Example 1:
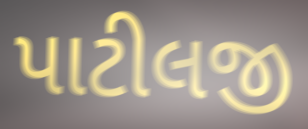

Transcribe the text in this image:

પાટીલજી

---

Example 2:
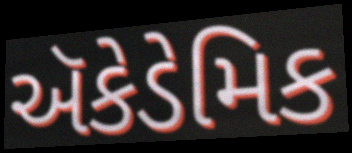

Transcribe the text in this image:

ઍકેડેમિક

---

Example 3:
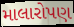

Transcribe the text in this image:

માલારોપણ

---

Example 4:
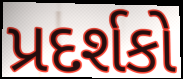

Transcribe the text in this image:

પ્રદર્શકો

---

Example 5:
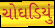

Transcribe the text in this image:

ચોઘડિયું